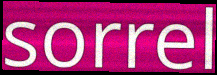
sorrel